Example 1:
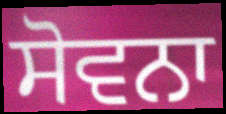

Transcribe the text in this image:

ਸੋਵਨਾ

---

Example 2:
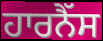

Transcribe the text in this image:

ਹਾਰਨੈੱਸ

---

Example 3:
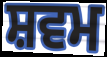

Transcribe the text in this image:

ਸ਼ਵਮ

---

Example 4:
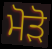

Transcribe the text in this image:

ਮੋੜੋ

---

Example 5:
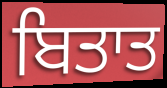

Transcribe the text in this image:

ਬਿਤਾਤ